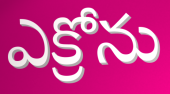
ఎక్రోను